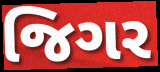
જિગર